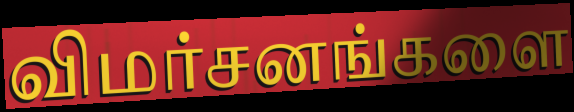
விமர்சனங்களை